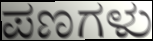
ಪಣಗಳು